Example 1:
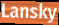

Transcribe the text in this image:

Lansky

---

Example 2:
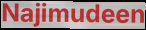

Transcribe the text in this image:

Najimudeen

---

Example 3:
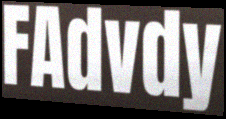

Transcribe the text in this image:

FAdvdy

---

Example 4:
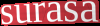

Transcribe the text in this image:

surasa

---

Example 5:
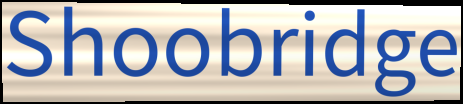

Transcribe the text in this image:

Shoobridge